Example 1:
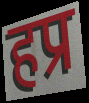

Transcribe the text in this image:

हप्र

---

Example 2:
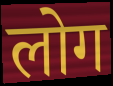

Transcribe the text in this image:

लोग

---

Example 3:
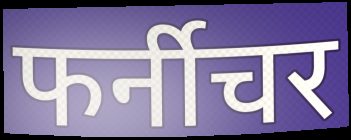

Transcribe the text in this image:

फर्नीचर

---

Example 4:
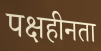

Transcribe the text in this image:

पक्षहीनता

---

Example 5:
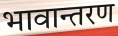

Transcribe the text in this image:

भावान्तरण